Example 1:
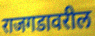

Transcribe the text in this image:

राजगडावरील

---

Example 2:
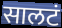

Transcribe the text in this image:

सालटं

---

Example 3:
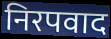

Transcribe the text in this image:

निरपवाद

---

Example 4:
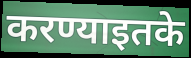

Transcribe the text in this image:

करण्याइतके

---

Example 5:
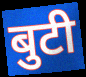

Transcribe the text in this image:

बुटी